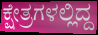
ಕ್ಷೇತ್ರಗಳಲ್ಲಿದ್ದ